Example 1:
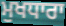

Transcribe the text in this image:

ਮੁਖਧਾਰਾ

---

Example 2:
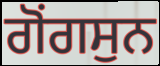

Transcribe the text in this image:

ਗੋਂਗਸੁਨ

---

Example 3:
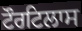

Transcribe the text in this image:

ਟੌਰਟਿਲਾਸ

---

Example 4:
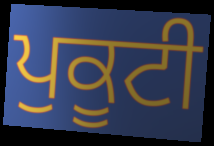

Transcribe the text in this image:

ਪੁਕੂਟੀ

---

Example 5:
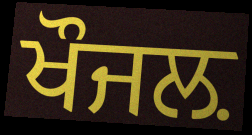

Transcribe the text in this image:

ਖੌਜਲ਼